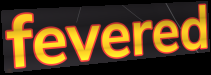
fevered